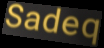
Sadeq